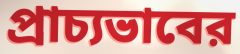
প্রাচ্যভাবের